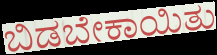
ಬಿಡಬೇಕಾಯಿತು